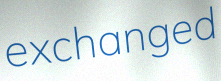
exchanged